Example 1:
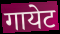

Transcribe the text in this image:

गायेट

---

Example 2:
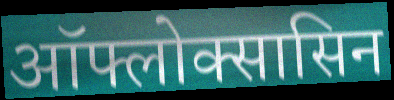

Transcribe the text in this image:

ऑफ्लोक्सासिन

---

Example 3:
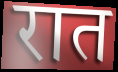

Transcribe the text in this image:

रात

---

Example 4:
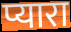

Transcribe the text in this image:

प्यारा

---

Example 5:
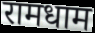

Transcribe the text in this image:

रामधाम